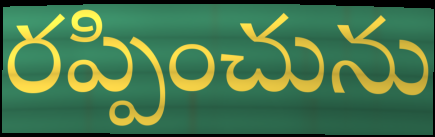
రప్పించును